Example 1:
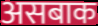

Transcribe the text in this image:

असबाक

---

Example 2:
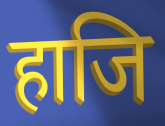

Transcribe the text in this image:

हाजि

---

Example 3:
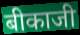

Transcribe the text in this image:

बीकाजी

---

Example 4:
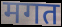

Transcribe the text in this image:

मगत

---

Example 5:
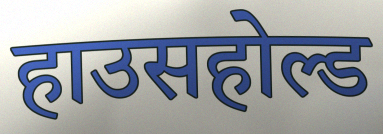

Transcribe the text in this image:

हाउसहोल्ड